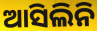
ଆସିଲିନି